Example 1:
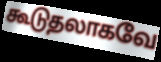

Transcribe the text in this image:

கூடுதலாகவே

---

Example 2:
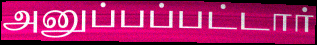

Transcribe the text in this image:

அனுப்பப்பட்டார்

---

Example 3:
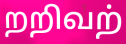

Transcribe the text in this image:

றறிவற்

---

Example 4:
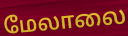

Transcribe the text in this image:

மேலாலை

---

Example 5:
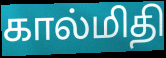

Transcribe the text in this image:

கால்மிதி